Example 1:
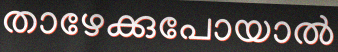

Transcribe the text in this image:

താഴേക്കുപോയാൽ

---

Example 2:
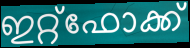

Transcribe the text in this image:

ഇറ്റ്ഫോക്ക്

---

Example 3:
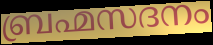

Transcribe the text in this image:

ബ്രഹ്മസദനം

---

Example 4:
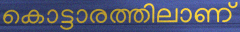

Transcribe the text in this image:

കൊട്ടാരത്തിലാണ്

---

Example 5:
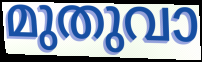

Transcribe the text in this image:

മുതുവാ